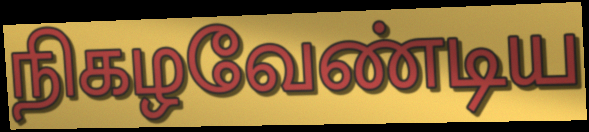
நிகழவேண்டிய